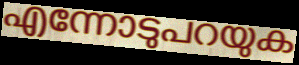
എന്നോടുപറയുക